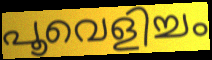
പൂവെളിച്ചം